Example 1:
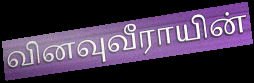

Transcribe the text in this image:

வினவுவீராயின்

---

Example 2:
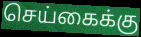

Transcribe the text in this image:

செய்கைக்கு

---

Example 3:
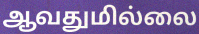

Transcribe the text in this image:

ஆவதுமில்லை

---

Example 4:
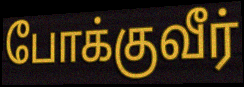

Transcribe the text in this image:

போக்குவீர்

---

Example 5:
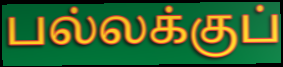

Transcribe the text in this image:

பல்லக்குப்